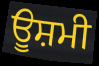
ਊਸ਼ਮੀ